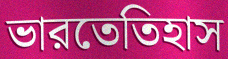
ভারতেতিহাস